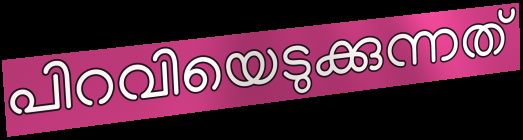
പിറവിയെടുക്കുന്നത്